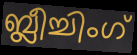
ബ്ലീച്ചിംഗ്